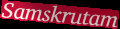
Samskrutam